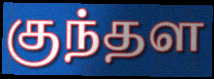
குந்தள